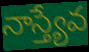
నాస్త్యేవ